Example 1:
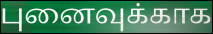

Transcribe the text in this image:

புனைவுக்காக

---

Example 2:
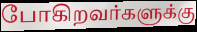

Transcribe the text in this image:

போகிறவர்களுக்கு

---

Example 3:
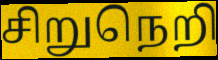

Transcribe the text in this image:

சிறுநெறி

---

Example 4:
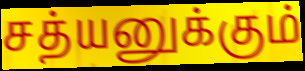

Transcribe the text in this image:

சத்யனுக்கும்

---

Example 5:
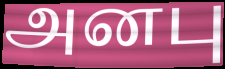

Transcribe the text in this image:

அனபு